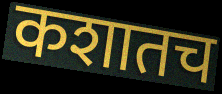
कशातच